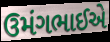
ઉમંગભાઈએ